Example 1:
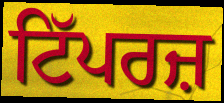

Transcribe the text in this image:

ਟਿੱਪਰਜ਼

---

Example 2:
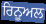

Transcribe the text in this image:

ਰਿਨੂਅਲ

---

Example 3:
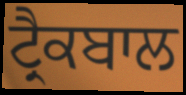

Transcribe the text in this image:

ਟ੍ਰੈਕਬਾਲ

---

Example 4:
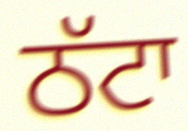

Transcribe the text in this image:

ਠੱਟਾ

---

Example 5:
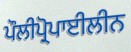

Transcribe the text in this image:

ਪੌਲੀਪ੍ਰੋਪਾਈਲੀਨ